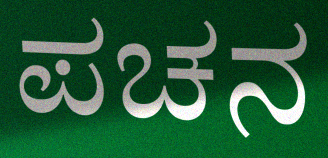
ಪಚನ